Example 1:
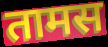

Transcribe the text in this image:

तामस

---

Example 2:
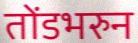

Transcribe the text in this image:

तोंडभरुन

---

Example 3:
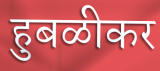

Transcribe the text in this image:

हुबळीकर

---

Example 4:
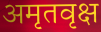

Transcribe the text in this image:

अमृतवृक्ष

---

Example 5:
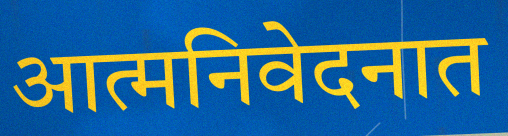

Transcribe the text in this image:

आत्मनिवेदनात